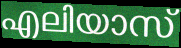
എലിയാസ്